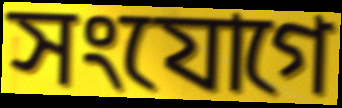
সংযোগে